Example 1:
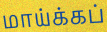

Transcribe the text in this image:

மாய்க்கப்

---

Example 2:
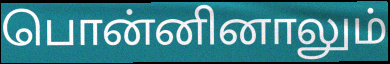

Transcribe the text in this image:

பொன்னினாலும்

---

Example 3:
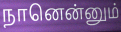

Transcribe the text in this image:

நானென்னும்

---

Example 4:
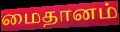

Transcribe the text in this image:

மைதானம்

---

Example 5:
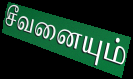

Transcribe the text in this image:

சீவனையும்